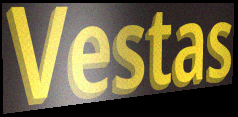
Vestas